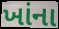
ખાંના